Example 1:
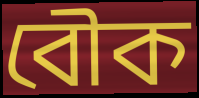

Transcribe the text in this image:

বৌক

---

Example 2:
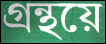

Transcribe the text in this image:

গ্ৰন্থয়ে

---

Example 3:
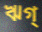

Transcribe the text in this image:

ঋগ্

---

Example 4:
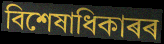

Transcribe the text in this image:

বিশেষাধিকাৰৰ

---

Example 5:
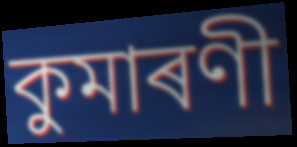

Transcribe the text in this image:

কুমাৰণী